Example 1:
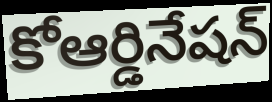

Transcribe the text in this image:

కోఆర్డినేషన్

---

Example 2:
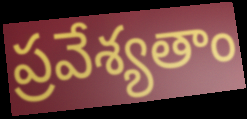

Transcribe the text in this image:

ప్రవేశ్యతాం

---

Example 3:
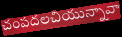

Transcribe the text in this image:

చంపదలచియున్నావా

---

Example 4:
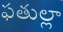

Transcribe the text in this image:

ఫతుల్లా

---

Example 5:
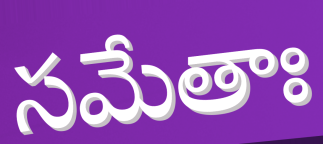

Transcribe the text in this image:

సమేతాః